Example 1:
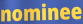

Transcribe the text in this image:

nominee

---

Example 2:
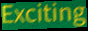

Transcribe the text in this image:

Exciting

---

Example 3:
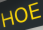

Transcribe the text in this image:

HOE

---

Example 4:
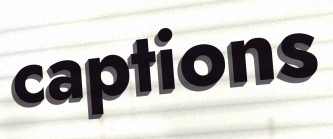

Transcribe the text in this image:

captions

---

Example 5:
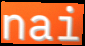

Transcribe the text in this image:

nai